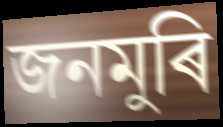
জনমুৰি